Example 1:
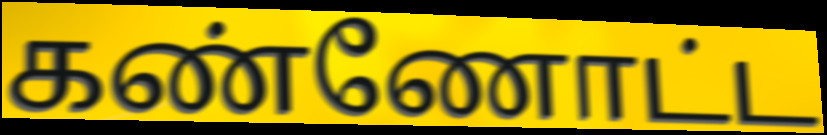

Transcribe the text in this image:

கண்ணோட்ட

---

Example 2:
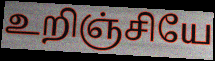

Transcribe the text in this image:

உறிஞ்சியே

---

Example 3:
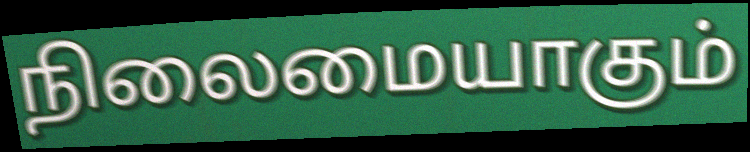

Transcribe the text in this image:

நிலைமையாகும்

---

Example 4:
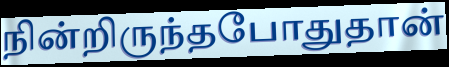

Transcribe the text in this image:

நின்றிருந்தபோதுதான்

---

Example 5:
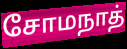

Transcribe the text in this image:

சோமநாத்